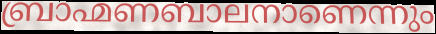
ബ്രാഹ്മണബാലനാണെന്നും